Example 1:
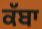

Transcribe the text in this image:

ਕੱਬਾ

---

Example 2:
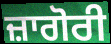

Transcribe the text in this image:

ਜ਼ਾਗੋਰੀ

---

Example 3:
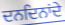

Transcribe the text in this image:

ਦਨਦਿਨਾਂਦੇ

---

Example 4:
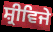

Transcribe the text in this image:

ਸ਼੍ਰੀਵਿਜੇ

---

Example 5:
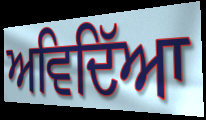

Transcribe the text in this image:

ਅਵਿਦਿੱਆ